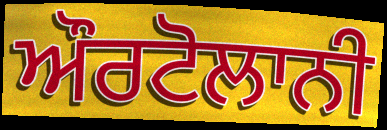
ਔਰਟੋਲਾਨੀ